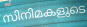
സിനിമകളുടെ